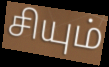
சியும்